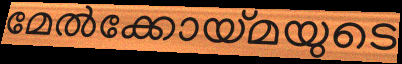
മേൽക്കോയ്മയുടെ